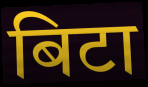
बिटा